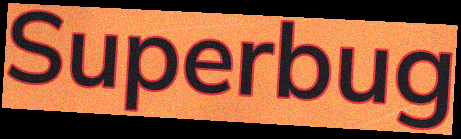
Superbug